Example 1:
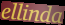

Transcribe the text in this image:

ellinda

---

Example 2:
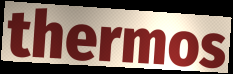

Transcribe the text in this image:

thermos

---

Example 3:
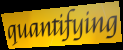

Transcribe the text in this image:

quantifying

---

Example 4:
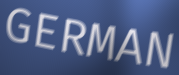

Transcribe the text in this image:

GERMAN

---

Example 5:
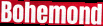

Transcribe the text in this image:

Bohemond